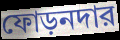
ফোড়নদার